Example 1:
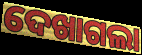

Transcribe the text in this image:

ଦେଖାଗଲା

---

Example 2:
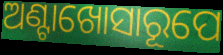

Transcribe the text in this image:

ଅଣ୍ଟାଖୋସାରୂପେ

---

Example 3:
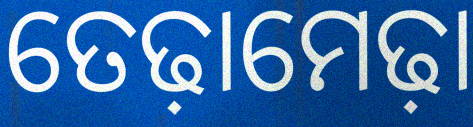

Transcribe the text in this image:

ତେଢ଼ାମେଢ଼ା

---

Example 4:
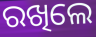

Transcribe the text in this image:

ରଖିଲେ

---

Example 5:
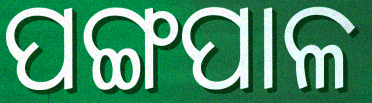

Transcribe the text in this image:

ପଙ୍ଗପାଳ